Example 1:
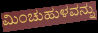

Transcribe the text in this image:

ಮಿಂಚುಹುಳವನ್ನು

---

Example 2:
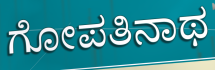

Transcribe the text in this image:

ಗೋಪತಿನಾಥ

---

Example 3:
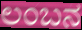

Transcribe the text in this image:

ಲಂಬನ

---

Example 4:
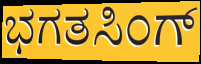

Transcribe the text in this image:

ಭಗತಸಿಂಗ್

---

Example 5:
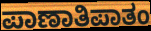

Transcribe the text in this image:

ಪಾಣಾತಿಪಾತಂ